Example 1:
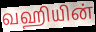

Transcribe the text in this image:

வஹியின்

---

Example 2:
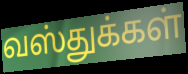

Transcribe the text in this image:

வஸ்துக்கள்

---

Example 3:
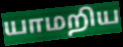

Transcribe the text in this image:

யாமறிய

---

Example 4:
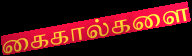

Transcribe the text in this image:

கைகால்களை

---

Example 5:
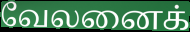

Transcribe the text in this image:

வேலனைக்